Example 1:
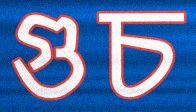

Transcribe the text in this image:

গুচ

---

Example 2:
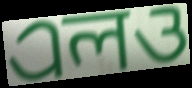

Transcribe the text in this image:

এলও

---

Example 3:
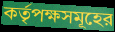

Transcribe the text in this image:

কর্তৃপক্ষসমূহের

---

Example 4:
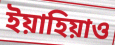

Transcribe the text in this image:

ইয়াহিয়াও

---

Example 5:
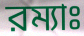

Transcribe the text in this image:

রম্যাঃ